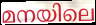
മനയിലെ